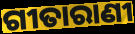
ଗୀତାରାଣୀ